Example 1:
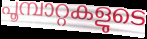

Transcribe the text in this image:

പൂമ്പാറ്റകളുടെ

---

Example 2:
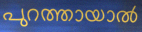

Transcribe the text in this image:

പുറത്തായാൽ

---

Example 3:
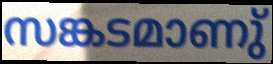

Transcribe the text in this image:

സങ്കടമാണു്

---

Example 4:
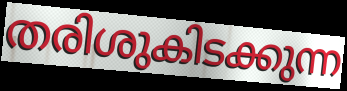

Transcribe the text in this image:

തരിശുകിടക്കുന്ന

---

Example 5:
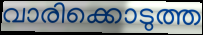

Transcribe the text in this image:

വാരിക്കൊടുത്ത